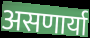
असणार्या